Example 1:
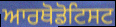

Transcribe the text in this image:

ਆਰਥੋਡੋਟਿਸਟ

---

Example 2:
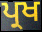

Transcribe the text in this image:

ਪ੍ਰਖ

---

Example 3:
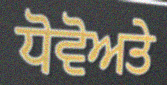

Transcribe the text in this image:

ਧੋਵੋਅਤੇ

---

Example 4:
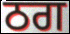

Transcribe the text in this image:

ਠਗ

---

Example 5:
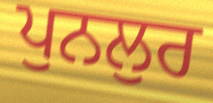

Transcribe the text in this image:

ਪੁਨਲੁਰ